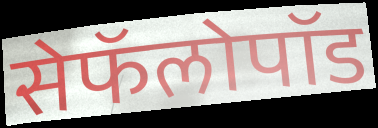
सेफॅलोपॉड